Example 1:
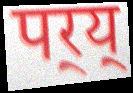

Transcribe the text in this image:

पर्य्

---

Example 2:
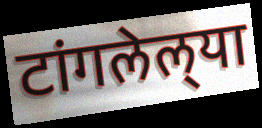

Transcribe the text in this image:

टांगलेल्या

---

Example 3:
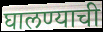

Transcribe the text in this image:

घालण्याची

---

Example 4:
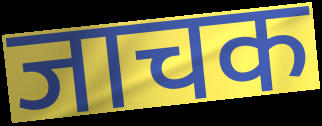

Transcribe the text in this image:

जाचक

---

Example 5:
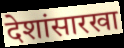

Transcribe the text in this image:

देशांसारखा